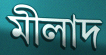
মীলাদ